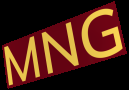
MNG